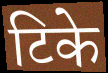
टिके